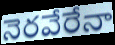
నెరవేరేనా